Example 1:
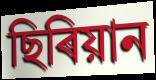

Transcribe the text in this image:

ছিৰিয়ান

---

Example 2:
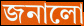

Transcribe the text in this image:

জনালো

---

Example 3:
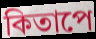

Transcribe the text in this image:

কিতাপে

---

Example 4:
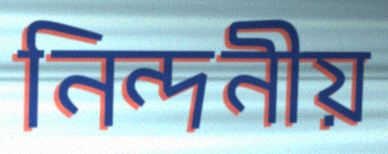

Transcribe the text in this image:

নিন্দনীয়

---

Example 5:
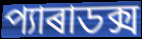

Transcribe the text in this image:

প্যাৰাডক্স